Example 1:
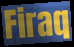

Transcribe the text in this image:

Firaq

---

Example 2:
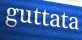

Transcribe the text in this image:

guttata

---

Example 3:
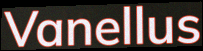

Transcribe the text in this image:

Vanellus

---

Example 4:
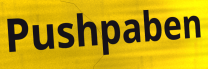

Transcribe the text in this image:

Pushpaben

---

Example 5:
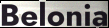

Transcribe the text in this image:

Belonia